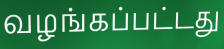
வழங்கப்பட்டது